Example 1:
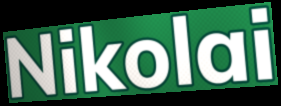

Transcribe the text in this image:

Nikolai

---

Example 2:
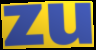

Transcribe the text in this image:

zu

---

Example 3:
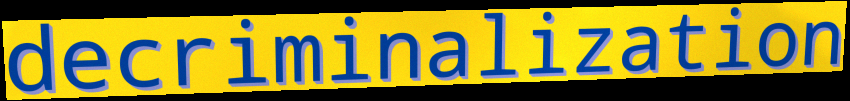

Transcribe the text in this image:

decriminalization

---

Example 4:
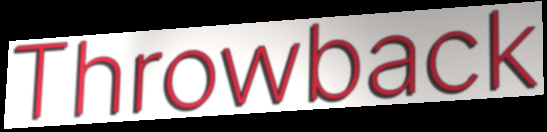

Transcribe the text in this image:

Throwback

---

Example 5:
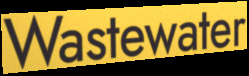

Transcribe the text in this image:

Wastewater